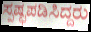
ಸ್ಪಷ್ಟಪಡಿಸಿದ್ದರು